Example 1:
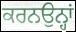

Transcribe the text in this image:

ਕਰਨਉਨ੍ਹਾਂ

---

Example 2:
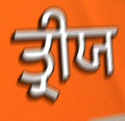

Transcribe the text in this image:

ਤ੍ਰੀਯ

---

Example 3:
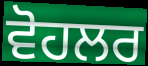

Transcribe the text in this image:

ਵੋਹਲਰ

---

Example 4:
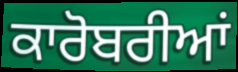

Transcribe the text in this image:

ਕਾਰੋਬਰੀਆਂ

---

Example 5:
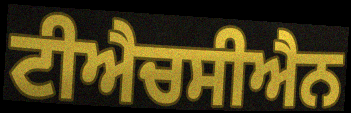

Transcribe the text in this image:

ਟੀਐਚਸੀਐਨ